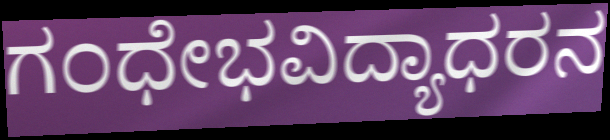
ಗಂಧೇಭವಿದ್ಯಾಧರನ